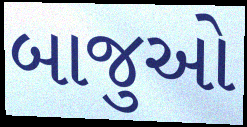
બાજુઓ